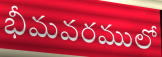
భీమవరములో